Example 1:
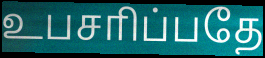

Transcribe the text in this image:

உபசரிப்பதே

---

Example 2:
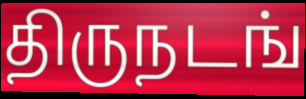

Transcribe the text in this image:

திருநடங்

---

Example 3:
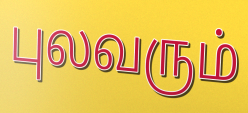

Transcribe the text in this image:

புலவரும்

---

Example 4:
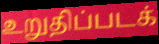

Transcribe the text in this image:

உறுதிப்படக்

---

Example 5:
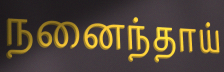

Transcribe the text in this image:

நனைந்தாய்